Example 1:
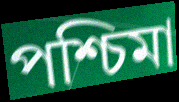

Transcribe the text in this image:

পশ্চিমা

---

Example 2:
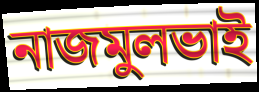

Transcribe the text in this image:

নাজমুলভাই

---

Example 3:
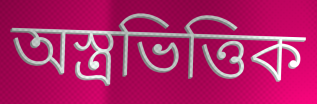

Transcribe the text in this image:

অস্ত্রভিত্তিক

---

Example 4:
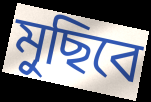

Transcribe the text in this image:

মুছিবে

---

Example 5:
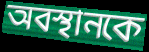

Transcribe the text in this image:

অবস্থানকে